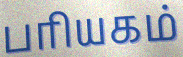
பரியகம்